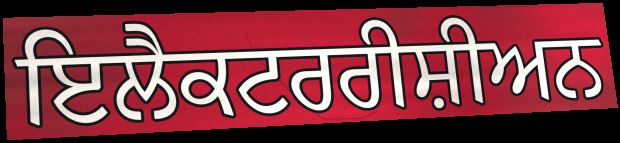
ਇਲੈਕਟਰਰੀਸ਼ੀਅਨ